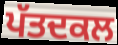
ਪੱਤਦਕਲ